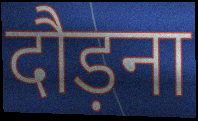
दौड़ना